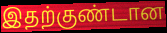
இதற்குண்டான